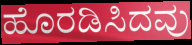
ಹೊರಡಿಸಿದವು